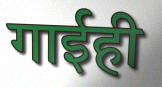
गाईही